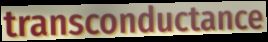
transconductance